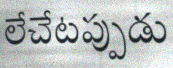
లేచేటప్పుడు